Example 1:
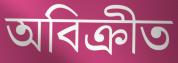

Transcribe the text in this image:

অবিক্রীত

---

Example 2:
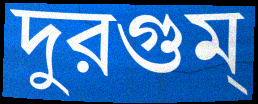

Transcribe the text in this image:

দুরগুম্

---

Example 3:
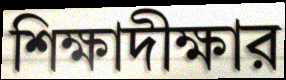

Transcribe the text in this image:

শিক্ষাদীক্ষার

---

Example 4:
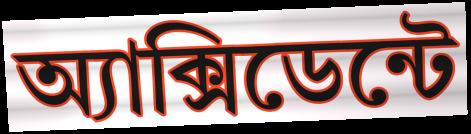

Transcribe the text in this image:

অ্যাক্সিডেন্টে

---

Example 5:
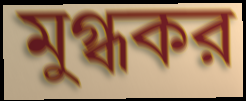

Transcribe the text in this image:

মুগ্ধকর